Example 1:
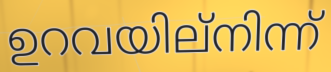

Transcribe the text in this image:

ഉറവയില്നിന്ന്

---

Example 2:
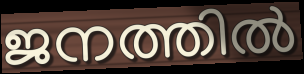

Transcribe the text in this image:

ജനത്തിൽ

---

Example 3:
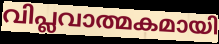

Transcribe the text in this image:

വിപ്ലവാത്മകമായി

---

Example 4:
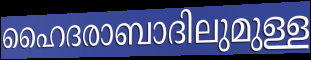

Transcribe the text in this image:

ഹൈദരാബാദിലുമുള്ള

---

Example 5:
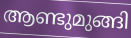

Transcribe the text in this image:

ആണ്ടുമുങ്ങി